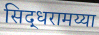
सिद्धरामय्या